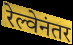
रेल्वेनंतर